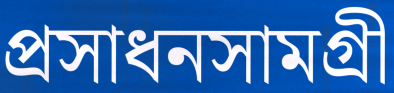
প্রসাধনসামগ্রী